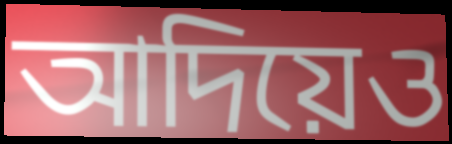
আদিয়েও